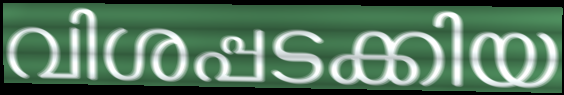
വിശപ്പടക്കിയ